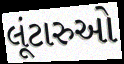
લૂંટારુઓ